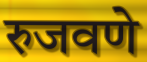
रुजवणे